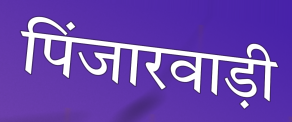
पिंजारवाड़ी